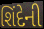
શિંદેની